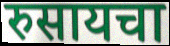
रुसायचा